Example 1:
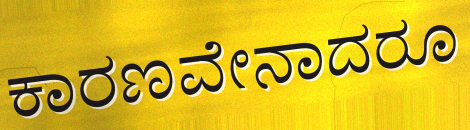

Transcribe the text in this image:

ಕಾರಣವೇನಾದರೂ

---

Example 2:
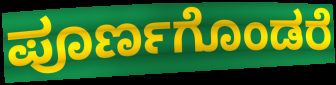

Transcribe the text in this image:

ಪೂರ್ಣಗೊಂಡರೆ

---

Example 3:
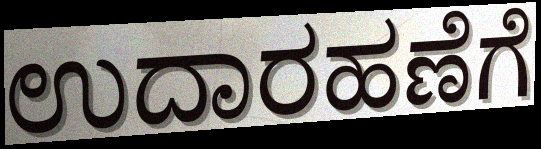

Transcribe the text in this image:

ಉದಾರಹಣೆಗೆ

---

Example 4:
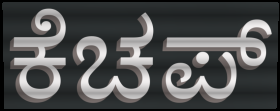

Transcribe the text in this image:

ಕೆಚಪ್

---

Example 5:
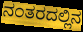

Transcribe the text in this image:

ನಂತರದಲ್ಲಿನ